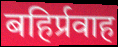
बहिर्प्रवाह